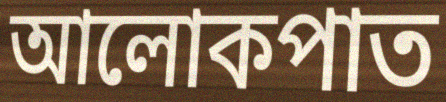
আলোকপাত